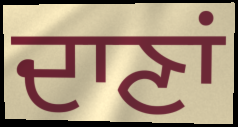
ਦਾਣਾਂ